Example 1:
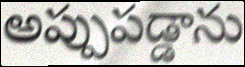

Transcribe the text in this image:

అప్పుపడ్డాను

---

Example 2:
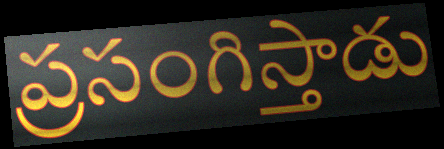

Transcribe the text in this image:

ప్రసంగిస్తాడు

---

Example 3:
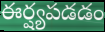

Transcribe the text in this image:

ఈర్ష్యపడడం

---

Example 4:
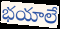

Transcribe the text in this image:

భయాలే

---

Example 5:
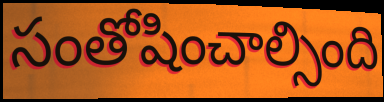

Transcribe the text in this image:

సంతోషించాల్సింది